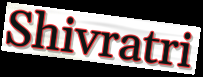
Shivratri